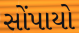
સોંપાયો